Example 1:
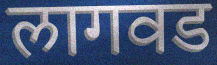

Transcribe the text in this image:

लागवड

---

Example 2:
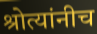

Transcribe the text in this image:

श्रोत्यांनीच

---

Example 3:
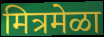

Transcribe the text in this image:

मित्रमेळा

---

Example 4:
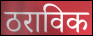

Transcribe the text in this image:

ठराविक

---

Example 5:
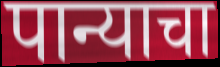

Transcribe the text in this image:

पान्याचा